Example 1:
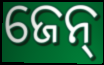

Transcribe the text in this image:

ଜେନ୍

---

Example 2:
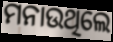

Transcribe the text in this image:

ମନାଉଥିଲେ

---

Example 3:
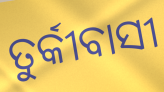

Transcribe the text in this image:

ତୁର୍କୀବାସୀ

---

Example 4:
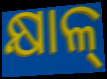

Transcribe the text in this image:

କ୍ଷାଳ୍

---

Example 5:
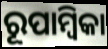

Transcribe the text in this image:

ରୂପାମ୍ୱିକା